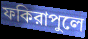
ফকিরাপুলে